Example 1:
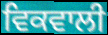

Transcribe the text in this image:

ਵਿਕਵਾਲੀ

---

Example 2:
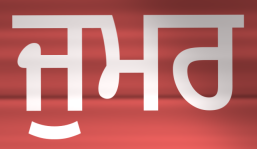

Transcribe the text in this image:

ਜੁਮਰ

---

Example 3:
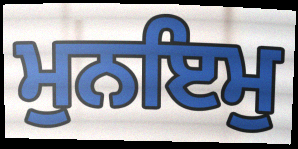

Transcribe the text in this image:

ਮੁਨਇਮੁ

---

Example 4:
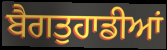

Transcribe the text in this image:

ਬੈਗਤੁਹਾਡੀਆਂ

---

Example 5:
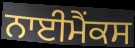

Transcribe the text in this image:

ਨਾਈਮੈਂਕਸ